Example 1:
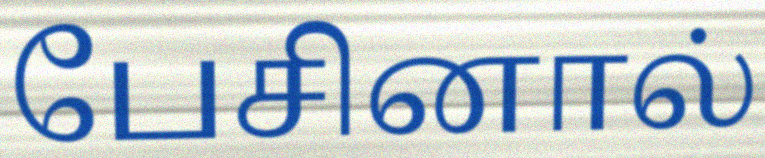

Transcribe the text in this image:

பேசினால்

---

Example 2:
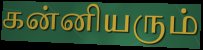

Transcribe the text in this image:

கன்னியரும்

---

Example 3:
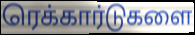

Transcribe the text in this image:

ரெக்கார்டுகளை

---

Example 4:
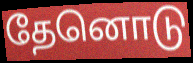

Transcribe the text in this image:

தேனொடு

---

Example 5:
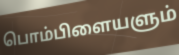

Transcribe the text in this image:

பொம்பிளையளும்